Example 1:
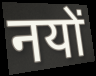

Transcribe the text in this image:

नयों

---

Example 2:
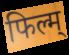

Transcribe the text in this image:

फिल्म्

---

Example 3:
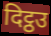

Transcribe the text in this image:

दिट्ठउ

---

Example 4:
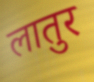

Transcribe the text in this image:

लातुर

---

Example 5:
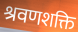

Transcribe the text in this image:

श्रवणशक्ति